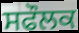
ਸਫੌਲਕ